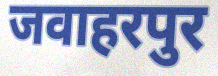
जवाहरपुर